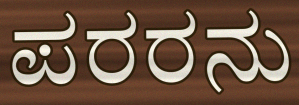
ಪರರನು